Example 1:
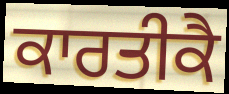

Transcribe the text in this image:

ਕਾਰਤੀਕੈ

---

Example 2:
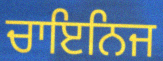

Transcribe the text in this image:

ਚਾਇਨਿਜ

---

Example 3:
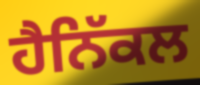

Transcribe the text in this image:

ਹੈਨਿੱਕਲ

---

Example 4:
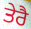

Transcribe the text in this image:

ਤੇਰੈ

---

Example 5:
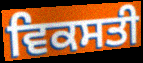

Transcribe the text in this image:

ਵਿਕਸਤੀ